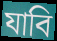
যাবি